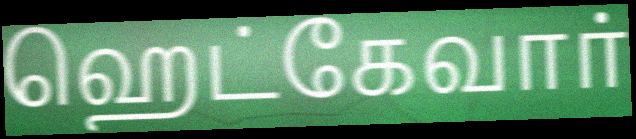
ஹெட்கேவார்